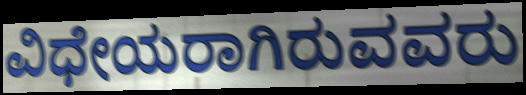
ವಿಧೇಯರಾಗಿರುವವರು